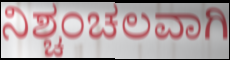
ನಿಶ್ಚಂಚಲವಾಗಿ